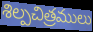
శిల్పచిత్రములు